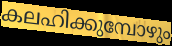
കലഹിക്കുമ്പോഴും